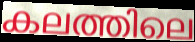
കലത്തിലെ